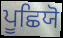
ਪੂਛਿਯੋ